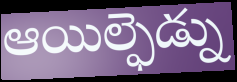
ఆయిల్ఫెడ్ను